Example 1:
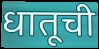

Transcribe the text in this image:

धातूची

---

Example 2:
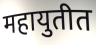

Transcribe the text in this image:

महायुतीत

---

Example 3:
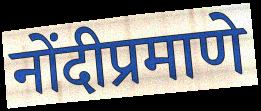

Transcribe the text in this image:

नोंदीप्रमाणे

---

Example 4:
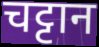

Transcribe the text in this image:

चट्टान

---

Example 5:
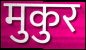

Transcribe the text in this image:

मुकुर